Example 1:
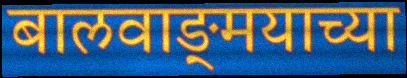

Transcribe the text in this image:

बालवाङ्‌मयाच्या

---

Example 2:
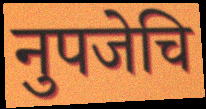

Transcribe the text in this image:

नुपजेचि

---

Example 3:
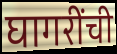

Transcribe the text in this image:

घागरींची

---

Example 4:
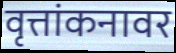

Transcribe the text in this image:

वृत्तांकनावर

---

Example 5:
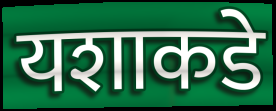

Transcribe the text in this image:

यशाकडे